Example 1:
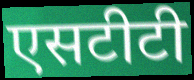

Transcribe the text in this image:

एसटीटी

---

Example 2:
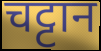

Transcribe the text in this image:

चट्टान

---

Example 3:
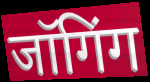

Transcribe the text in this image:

जॉगिंग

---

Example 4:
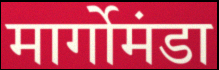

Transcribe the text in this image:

मार्गोमंडा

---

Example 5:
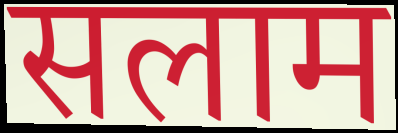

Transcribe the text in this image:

सलाम